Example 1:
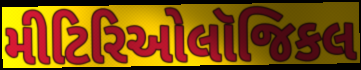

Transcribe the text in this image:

મીટિરિઓલૉજિકલ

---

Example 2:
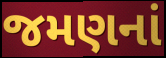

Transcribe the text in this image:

જમણનાં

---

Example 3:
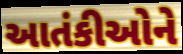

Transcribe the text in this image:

આતંકીઓને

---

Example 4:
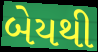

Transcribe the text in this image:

બેયથી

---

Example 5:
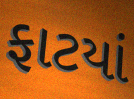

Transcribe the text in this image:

ફાટયાં